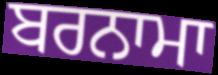
ਬਰਨਾਮਾ